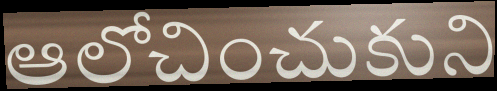
ఆలోచించుకుని